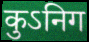
कुऽनिग